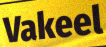
Vakeel